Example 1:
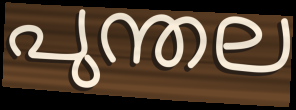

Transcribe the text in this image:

പുന്തല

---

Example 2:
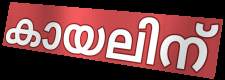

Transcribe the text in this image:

കായലിന്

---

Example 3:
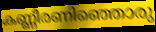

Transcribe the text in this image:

കണ്ണീരണിഞ്ഞൊരു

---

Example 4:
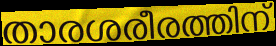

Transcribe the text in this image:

താരശരീരത്തിന്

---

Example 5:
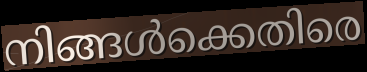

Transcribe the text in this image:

നിങ്ങൾക്കെതിരെ